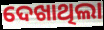
ଦେଖାଥିଲା